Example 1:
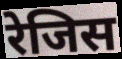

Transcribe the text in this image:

रेजिस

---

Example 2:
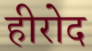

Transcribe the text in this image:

हीरोद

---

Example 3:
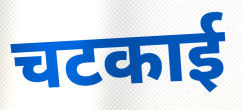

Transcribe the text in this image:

चटकाई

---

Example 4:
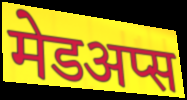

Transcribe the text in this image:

मेडअप्स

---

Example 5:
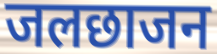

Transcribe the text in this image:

जलछाजन